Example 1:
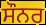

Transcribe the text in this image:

ਸੌਨਰ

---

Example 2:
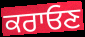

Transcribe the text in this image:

ਕਰਾਓਣ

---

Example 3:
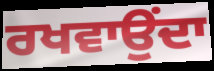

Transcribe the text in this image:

ਰਖਵਾਉਂਦਾ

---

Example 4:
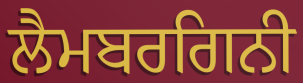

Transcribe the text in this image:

ਲੈਮਬਰਗਿਨੀ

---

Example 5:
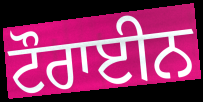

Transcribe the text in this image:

ਟੌਰਾਈਨ